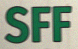
SFF